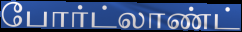
போர்ட்லாண்ட்